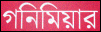
গনিমিয়ার